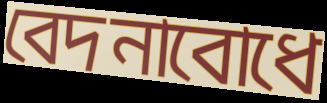
বেদনাবোধে